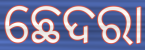
ଛେଦରା